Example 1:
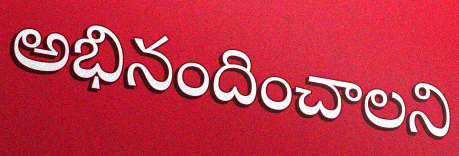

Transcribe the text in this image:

అభినందించాలని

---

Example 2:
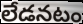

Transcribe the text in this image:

లేడనటం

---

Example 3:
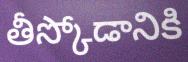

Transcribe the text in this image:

తీస్కోడానికి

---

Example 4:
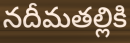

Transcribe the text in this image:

నదీమతల్లికి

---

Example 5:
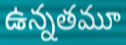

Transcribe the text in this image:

ఉన్నతమూ